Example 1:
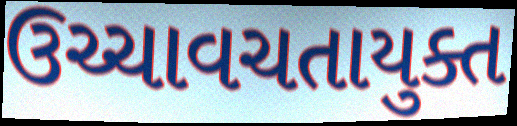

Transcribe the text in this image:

ઉચ્ચાવચતાયુક્ત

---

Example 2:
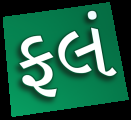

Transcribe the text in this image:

ફલં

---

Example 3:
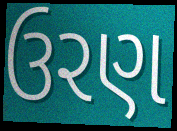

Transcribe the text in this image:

ઉરણ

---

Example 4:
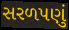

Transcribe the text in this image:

સરળપણું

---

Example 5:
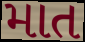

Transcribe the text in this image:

માત